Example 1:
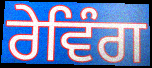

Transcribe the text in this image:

ਰੇਵਿੰਗ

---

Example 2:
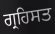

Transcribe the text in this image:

ਗ੍ਰਹਿਸਤ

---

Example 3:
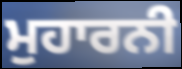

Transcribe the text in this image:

ਮੁਹਾਰਨੀ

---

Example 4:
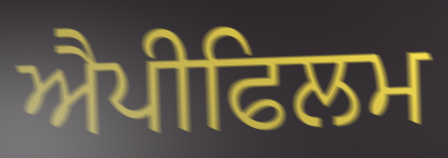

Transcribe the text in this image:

ਐਪੀਫਿਲਮ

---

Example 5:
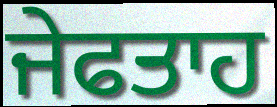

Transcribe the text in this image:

ਜੇਫਤਾਹ